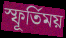
স্ফূর্তিময়